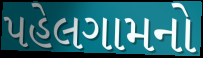
પહેલગામનો